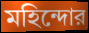
মহিন্দোর